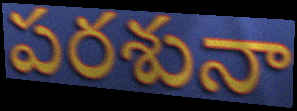
పరశునా